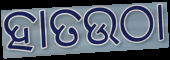
ହାତଉଠା